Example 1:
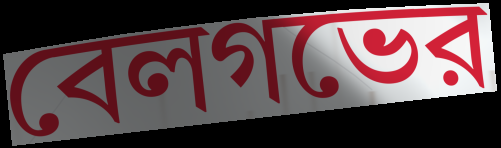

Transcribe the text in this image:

বেলগভের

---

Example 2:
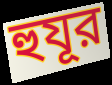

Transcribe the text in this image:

হুযূর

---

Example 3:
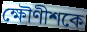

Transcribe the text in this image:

ক্ষৌণীশকে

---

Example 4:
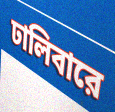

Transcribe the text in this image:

ঢালিবারে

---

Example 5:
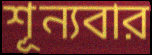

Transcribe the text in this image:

শূন্যবার